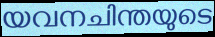
യവനചിന്തയുടെ